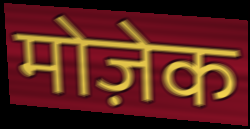
मोज़ेक